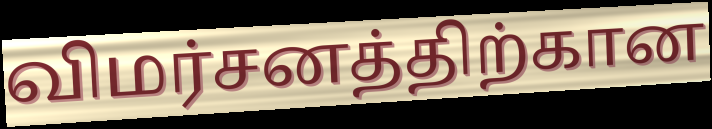
விமர்சனத்திற்கான